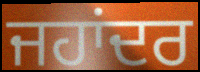
ਜਹਾਂਦਰ